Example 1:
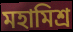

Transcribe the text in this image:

মহামিশ্র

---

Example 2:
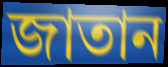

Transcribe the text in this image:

জাতান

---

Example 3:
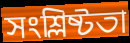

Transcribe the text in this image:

সংশ্লিষ্টতা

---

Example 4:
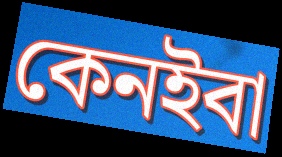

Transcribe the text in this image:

কেনইবা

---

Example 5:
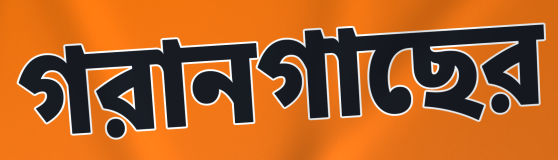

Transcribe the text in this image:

গরানগাছের